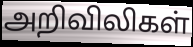
அறிவிலிகள்